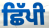
ਛਿੱਪੀ